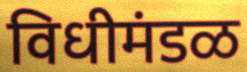
विधीमंडळ